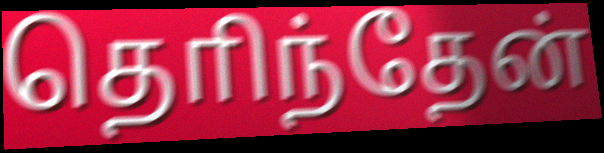
தெரிந்தேன்